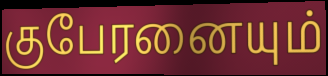
குபேரனையும்